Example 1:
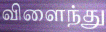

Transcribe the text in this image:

விளைந்து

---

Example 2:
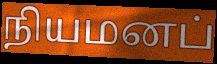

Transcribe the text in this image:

நியமனப்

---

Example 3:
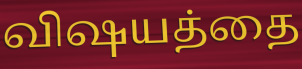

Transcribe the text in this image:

விஷயத்தை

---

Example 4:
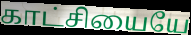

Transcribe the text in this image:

காட்சியையே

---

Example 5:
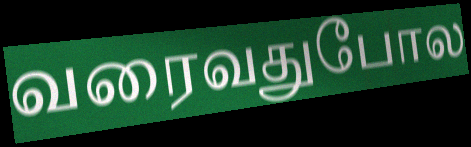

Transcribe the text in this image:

வரைவதுபோல